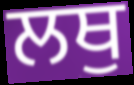
ਲਥੁ